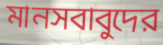
মানসবাবুদের